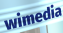
wimedia